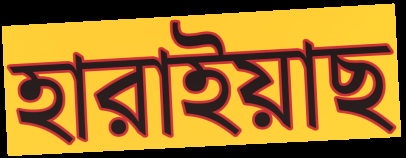
হারাইয়াছ